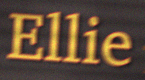
Ellie